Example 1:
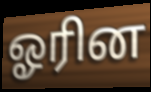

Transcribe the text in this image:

ஓரின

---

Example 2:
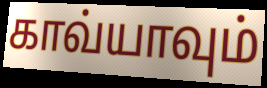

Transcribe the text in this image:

காவ்யாவும்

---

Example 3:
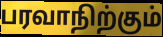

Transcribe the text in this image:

பரவாநிற்கும்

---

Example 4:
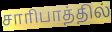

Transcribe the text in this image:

சாரிபாத்தில்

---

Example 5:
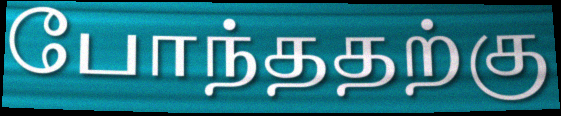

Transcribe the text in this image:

போந்ததற்கு